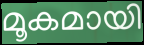
മൂകമായി